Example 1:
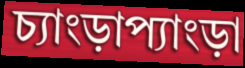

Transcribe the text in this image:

চ্যাংড়াপ্যাংড়া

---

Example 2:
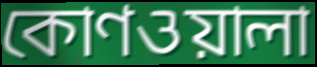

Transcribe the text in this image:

কোণওয়ালা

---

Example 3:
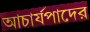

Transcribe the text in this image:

আচার্যপাদের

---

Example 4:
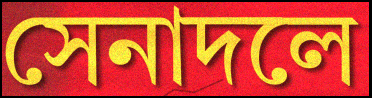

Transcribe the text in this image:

সেনাদলে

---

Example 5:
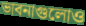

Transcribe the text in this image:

ভাবনাগুলোও